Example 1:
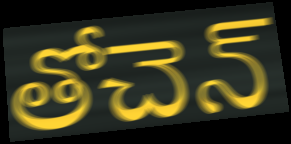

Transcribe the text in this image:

తోచెన్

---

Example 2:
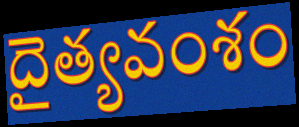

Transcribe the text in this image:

దైత్యవంశం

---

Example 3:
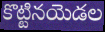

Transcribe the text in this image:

కొట్టినయెడల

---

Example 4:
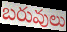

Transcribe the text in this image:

బరువులు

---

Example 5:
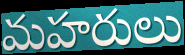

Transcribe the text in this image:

మహరులు